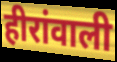
हीरांवाली